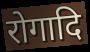
रोगादि